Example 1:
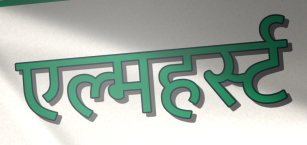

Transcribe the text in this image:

एल्महर्स्ट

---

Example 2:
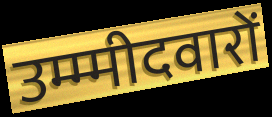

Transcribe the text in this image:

उम्म्मीदवारों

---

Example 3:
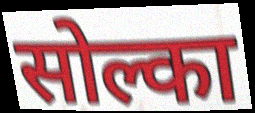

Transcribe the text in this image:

सोल्का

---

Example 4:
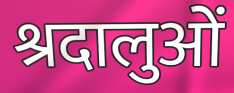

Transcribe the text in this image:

श्रदालुओं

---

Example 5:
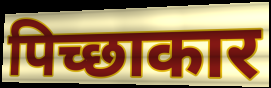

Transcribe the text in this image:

पिच्छाकार